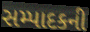
સમ્પાદકની